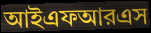
আইএফআরএস